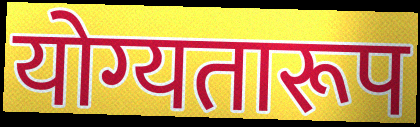
योग्यतारूप